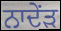
ਨਾਦੇਂੜ